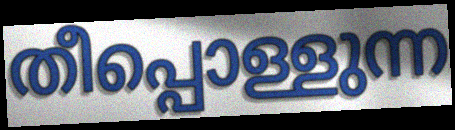
തീപ്പൊള്ളുന്ന